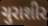
ચુરાશીર